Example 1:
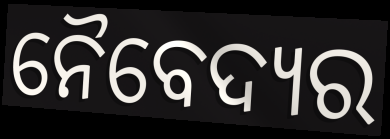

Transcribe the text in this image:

ନୈବେଦ୍ୟର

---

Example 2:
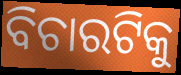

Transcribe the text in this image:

ବିଚାରଟିକୁ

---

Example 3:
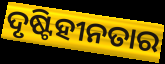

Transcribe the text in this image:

ଦୃଷ୍ଟିହୀନତାର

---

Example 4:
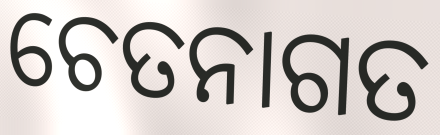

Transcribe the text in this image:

ଚେତନାଗତ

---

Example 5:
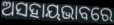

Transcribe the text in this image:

ଅସହାୟଭାବରେ